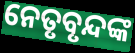
ନେତୃବୃନ୍ଦଙ୍କ